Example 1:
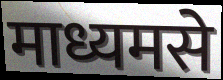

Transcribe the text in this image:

माध्यमसे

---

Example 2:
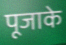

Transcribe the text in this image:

पूजाके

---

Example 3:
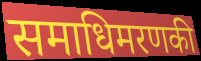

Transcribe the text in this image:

समाधिमरणकी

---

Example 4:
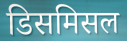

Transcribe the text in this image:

डिसमिसल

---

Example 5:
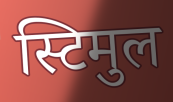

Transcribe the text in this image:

स्टिमुल